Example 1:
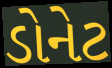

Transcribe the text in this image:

ડોનેટ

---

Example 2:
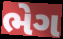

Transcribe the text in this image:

ભેગ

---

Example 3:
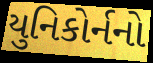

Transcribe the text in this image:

યુનિકોર્નનો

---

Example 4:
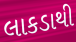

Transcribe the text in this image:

લાકડાથી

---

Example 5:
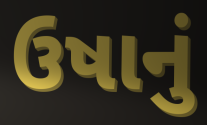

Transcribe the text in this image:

ઉષાનું